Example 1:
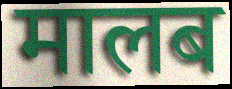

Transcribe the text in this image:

मालब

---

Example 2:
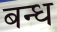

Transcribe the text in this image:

बन्ध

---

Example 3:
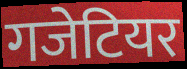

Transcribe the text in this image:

गजेटियर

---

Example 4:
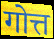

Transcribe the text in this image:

गोत्त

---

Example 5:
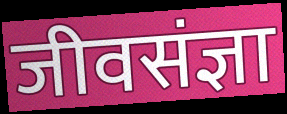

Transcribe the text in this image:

जीवसंज्ञा